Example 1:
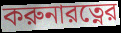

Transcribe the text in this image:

করুনারত্নের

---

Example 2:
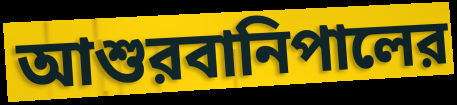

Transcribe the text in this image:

আশুরবানিপালের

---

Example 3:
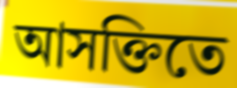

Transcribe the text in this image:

আসক্তিতে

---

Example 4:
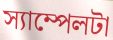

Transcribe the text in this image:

স্যাম্পেলটা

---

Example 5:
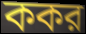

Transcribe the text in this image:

ককর